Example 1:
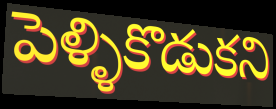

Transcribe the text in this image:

పెళ్ళికొడుకని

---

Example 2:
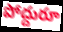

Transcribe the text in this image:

పోద్దురూ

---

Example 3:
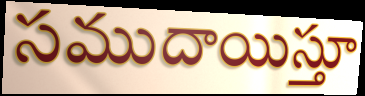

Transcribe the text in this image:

సముదాయిస్తూ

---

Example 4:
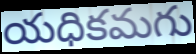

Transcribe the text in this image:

యధికమగు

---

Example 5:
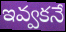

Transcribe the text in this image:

ఇవ్వకనే